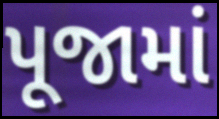
પૂજામાં